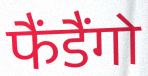
फैंडैंगो